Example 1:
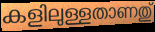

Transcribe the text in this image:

കളിലുള്ളതാണതു്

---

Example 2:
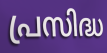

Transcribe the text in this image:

പ്രസിദ്ധ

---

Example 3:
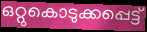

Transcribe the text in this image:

ഒറ്റുകൊടുക്കപ്പെട്ട്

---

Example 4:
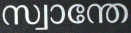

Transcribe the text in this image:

സ്വാന്തേ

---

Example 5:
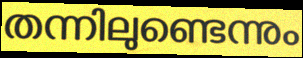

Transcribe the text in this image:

തന്നിലുണ്ടെന്നും